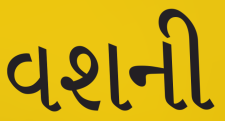
વશની